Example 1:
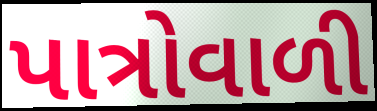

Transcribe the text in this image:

પાત્રોવાળી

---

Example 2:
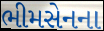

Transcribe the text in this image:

ભીમસેનના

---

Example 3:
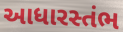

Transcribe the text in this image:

આધારસ્તંભ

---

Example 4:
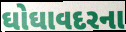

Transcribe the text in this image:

ઘોઘાવદરના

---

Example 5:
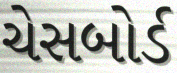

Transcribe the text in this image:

ચેસબોર્ડ